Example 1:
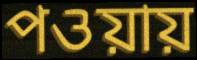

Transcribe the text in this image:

পওয়ায়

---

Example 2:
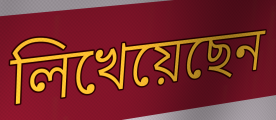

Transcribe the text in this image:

লিখেয়েছেন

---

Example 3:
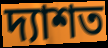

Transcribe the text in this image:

দ্যাশত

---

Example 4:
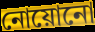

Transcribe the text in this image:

নোয়োনো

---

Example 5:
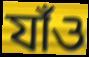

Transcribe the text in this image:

যাঁও